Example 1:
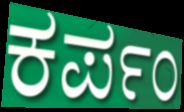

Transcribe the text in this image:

ಕರ್ಪಂ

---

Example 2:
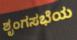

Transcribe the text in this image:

ಶೃಂಗಸಭೆಯ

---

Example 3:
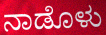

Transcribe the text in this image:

ನಾಡೊಳು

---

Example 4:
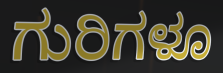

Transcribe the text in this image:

ಗುರಿಗಳೂ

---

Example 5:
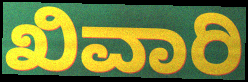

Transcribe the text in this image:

ಖಿವಾರಿ